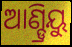
ଆଣ୍ଡ୍ରିୟୁ